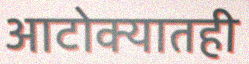
आटोक्यातही